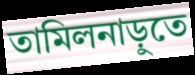
তামিলনাড়ুতে